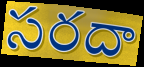
సరదా